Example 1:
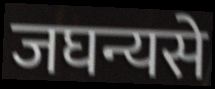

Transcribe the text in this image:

जघन्यसे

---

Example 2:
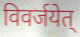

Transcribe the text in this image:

विवर्जयेत्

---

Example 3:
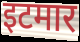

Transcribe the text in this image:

इटमार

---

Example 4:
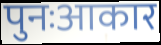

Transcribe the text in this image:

पुनःआकार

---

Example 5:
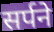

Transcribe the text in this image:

सर्पने